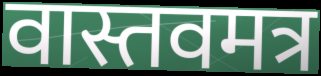
वास्तवमत्र